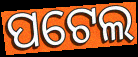
ପଟେଲ